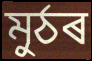
মুঠৰ